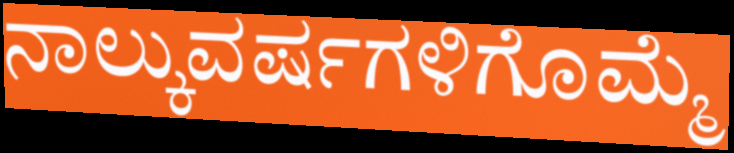
ನಾಲ್ಕುವರ್ಷಗಳಿಗೊಮ್ಮೆ